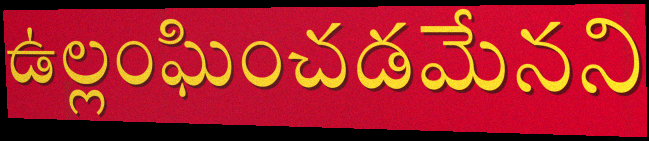
ఉల్లంఘించడమేనని